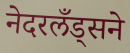
नेदरलँड्सने